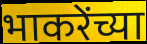
भाकरेंच्या